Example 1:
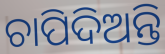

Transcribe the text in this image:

ଚାପିଦିଅନ୍ତି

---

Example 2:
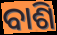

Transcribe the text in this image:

ବାଶି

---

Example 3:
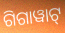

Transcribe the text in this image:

ଗିଗାୱାଟ୍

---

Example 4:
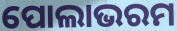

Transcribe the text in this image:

ପୋଲାଭରମ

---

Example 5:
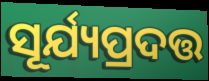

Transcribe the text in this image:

ସୂର୍ଯ୍ୟପ୍ରଦତ୍ତ